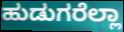
ಹುಡುಗರೆಲ್ಲಾ